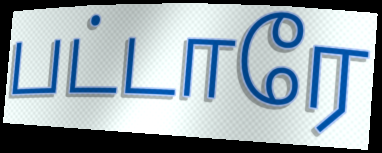
பட்டாரே